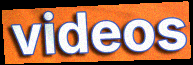
videos